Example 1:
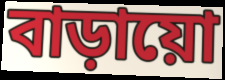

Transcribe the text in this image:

বাড়ায়ো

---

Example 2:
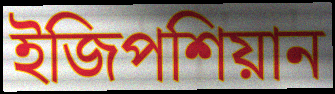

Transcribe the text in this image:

ইজিপশিয়ান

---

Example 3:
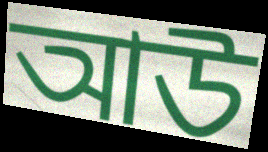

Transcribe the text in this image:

আউ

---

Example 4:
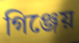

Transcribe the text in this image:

গিঞ্জেয়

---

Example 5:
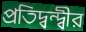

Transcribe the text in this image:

প্রতিদ্বন্দ্বীর